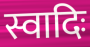
स्वादिः